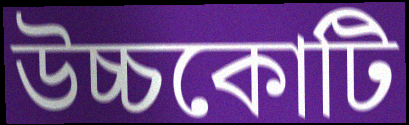
উচ্চকোটি